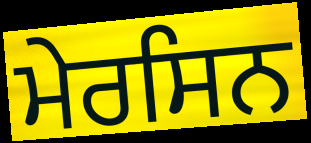
ਮੇਰਸਿਨ